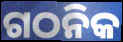
ଗଠନିକ